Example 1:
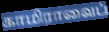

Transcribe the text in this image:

காமிராவைப்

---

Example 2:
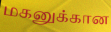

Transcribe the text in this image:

மகனுக்கான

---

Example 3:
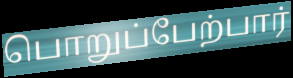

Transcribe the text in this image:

பொறுப்பேற்பார்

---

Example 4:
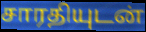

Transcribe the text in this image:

சாரதியுடன்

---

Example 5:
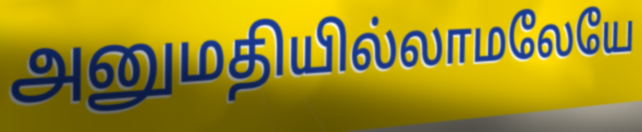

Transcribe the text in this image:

அனுமதியில்லாமலேயே